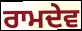
ਰਾਮਦੇਵ